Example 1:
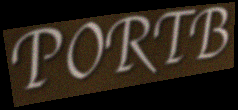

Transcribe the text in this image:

PORTB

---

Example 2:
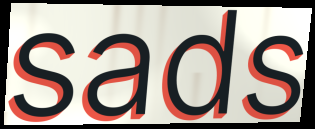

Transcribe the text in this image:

sads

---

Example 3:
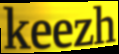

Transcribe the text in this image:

keezh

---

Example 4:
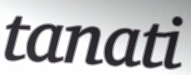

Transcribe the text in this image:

tanati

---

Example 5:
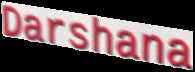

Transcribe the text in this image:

Darshana